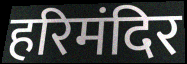
हरिमंदिर